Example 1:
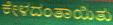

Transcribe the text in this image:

ಕೇಳದಂತಾಯಿತು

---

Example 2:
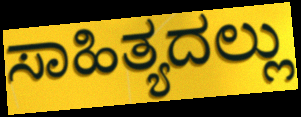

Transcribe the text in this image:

ಸಾಹಿತ್ಯದಲ್ಲು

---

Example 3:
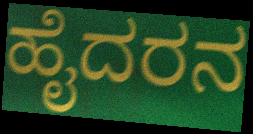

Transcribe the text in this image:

ಹೈದರನ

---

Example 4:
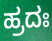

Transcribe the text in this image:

ಹ್ರದಃ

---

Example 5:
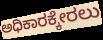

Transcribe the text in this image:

ಅಧಿಕಾರಕ್ಕೇರಲು